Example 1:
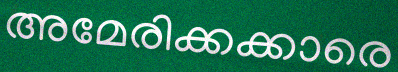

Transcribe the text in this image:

അമേരിക്കക്കാരെ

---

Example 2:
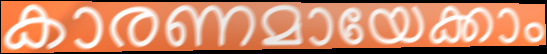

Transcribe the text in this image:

കാരണമായേക്കാം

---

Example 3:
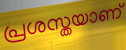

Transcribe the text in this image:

പ്രശസ്തയാണ്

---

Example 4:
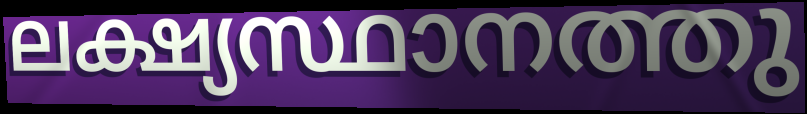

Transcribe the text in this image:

ലക്ഷ്യസ്ഥാനത്തു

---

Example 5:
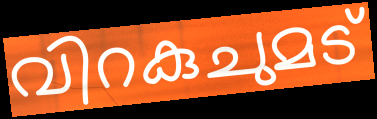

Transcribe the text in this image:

വിറകുചുമട്